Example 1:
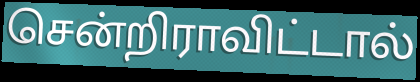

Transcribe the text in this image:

சென்றிராவிட்டால்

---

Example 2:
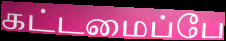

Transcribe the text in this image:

கட்டமைப்பே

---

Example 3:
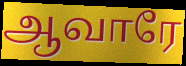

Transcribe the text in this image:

ஆவாரே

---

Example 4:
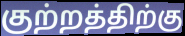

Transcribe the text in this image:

குற்றத்திற்கு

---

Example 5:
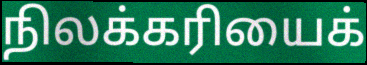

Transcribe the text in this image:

நிலக்கரியைக்